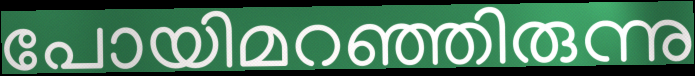
പോയിമറഞ്ഞിരുന്നു